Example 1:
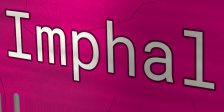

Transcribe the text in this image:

Imphal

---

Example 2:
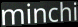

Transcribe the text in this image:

minchi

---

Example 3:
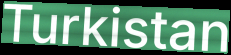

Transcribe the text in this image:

Turkistan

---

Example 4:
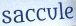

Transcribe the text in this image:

saccule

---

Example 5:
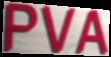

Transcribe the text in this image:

PVA